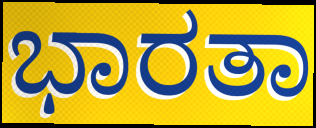
ಭಾರತಾ